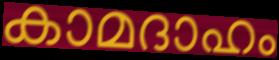
കാമദാഹം